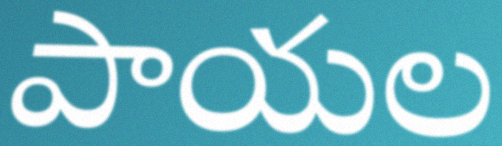
పాయల